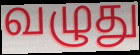
வழுது